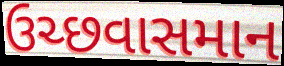
ઉચ્છવાસમાન